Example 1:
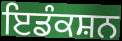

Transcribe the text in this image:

ਇਡੰਕਸ਼ਨ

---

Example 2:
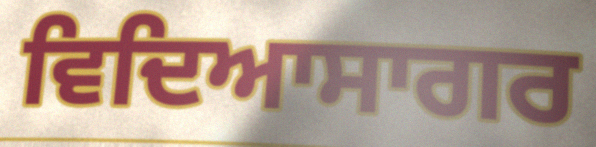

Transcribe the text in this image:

ਵਿਦਿਆਸਾਗਰ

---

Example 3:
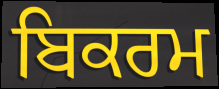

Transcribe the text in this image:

ਬਿਕਰਮ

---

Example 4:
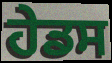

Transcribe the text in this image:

ਹੇਡਸ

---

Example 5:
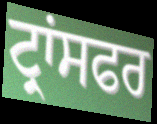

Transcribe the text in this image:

ਟ੍ਰਾਂਸਫਰ